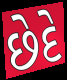
છેદે